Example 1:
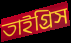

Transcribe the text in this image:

তাইগ্রিস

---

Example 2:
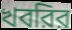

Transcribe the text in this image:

খবরির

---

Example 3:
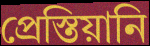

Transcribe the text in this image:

প্রেস্তিয়ানি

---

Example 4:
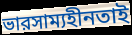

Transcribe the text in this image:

ভারসাম্যহীনতাই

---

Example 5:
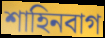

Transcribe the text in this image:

শাহিনবাগ